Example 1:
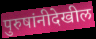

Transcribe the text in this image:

पुरुषांनीदेखील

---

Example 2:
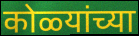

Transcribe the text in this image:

कोळ्यांच्या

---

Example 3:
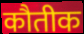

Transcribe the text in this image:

कौतीक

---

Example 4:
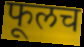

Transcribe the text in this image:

फूलच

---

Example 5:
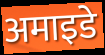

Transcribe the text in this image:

अमाइडे